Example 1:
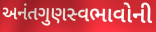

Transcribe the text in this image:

અનંતગુણસ્વભાવોની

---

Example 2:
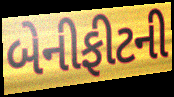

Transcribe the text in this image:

બેનીફીટની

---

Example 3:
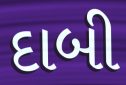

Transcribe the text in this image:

દાબી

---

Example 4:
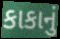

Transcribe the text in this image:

કાકાનું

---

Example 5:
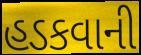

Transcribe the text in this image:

હડકવાની